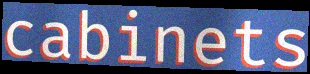
cabinets